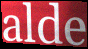
alde